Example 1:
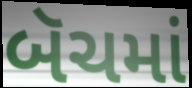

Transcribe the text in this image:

બૅચમાં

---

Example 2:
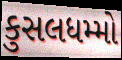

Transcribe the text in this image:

કુસલધમ્મો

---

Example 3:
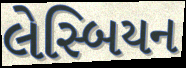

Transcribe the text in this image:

લેસ્બિયન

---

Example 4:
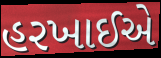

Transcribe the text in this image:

હરખાઈએ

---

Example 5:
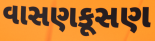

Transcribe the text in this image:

વાસણકૂસણ